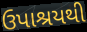
ઉપાશ્રયથી